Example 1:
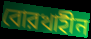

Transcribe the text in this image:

বোরখাহীন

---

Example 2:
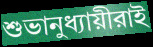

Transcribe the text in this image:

শুভানুধ্যায়ীরাই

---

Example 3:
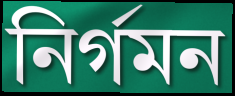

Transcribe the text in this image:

নির্গমন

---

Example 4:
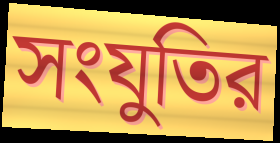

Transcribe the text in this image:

সংযুতির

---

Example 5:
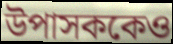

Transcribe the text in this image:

উপাসককেও